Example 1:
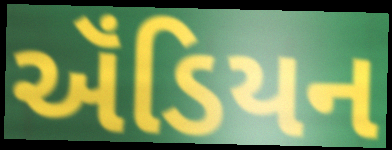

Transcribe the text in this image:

ઍંડિયન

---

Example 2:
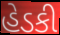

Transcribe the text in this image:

હેડકી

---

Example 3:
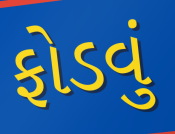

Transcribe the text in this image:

ફોડવું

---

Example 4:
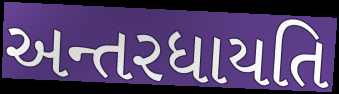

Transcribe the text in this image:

અન્તરધાયતિ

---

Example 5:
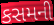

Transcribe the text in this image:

કસમની